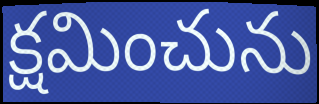
క్షమించును